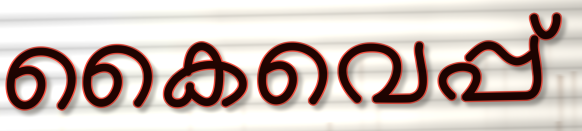
കൈവെപ്പ്